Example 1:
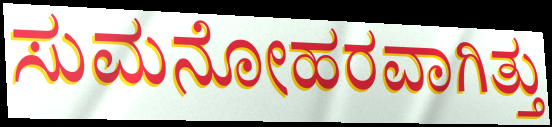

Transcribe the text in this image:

ಸುಮನೋಹರವಾಗಿತ್ತು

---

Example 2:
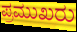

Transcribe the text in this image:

ಪ್ರಮುಖರು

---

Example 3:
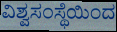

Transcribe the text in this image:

ವಿಶ್ವಸಂಸ್ಥೆಯಿಂದ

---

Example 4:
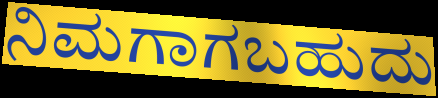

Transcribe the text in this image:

ನಿಮಗಾಗಬಹುದು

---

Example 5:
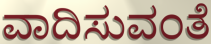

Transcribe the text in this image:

ವಾದಿಸುವಂತೆ